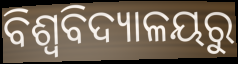
ବିଶ୍ୱବିଦ୍ୟାଳୟରୁ